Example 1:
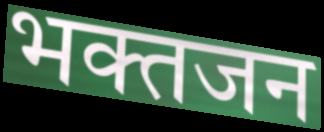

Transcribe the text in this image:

भक्तजन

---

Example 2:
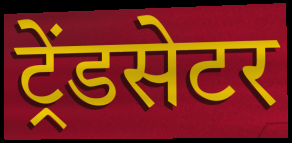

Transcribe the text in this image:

ट्रेंडसेटर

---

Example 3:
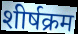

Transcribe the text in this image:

शीर्षक्रम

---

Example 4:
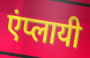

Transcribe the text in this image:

एंप्लायी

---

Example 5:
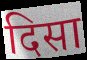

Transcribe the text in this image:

दिसा